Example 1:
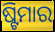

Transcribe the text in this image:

ଷ୍ଟିମାର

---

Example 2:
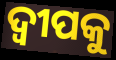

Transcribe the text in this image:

ଦ୍ୱୀପକୁ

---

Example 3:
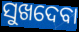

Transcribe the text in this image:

ସୁଖଦେବା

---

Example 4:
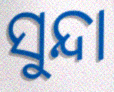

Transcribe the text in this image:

ସୁନ୍ଦା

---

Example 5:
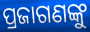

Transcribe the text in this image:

ପ୍ରଜାଗଣଙ୍କୁ